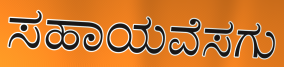
ಸಹಾಯವೆಸಗು